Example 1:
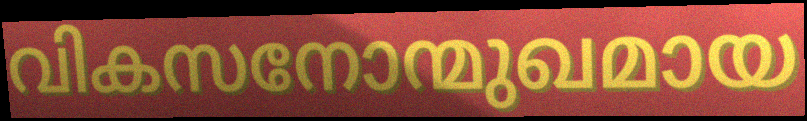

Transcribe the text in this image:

വികസനോന്മുഖമായ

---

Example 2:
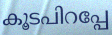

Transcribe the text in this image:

കൂടപിറപ്പേ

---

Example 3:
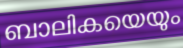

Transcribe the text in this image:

ബാലികയെയും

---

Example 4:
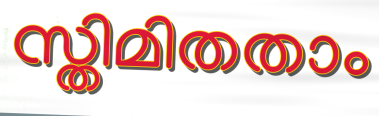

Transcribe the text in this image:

സ്തിമിതതാം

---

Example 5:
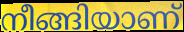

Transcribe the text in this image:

നീങ്ങിയാണ്